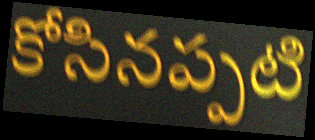
కోసినప్పటి